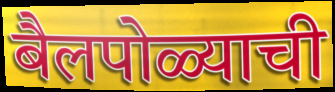
बैलपोळ्याची